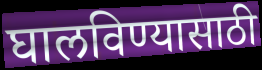
घालविण्यासाठी